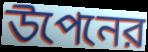
উপেনের